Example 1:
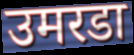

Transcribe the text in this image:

उमरडा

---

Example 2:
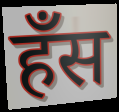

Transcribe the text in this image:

हँस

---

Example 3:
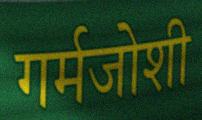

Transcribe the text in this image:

गर्मजोशी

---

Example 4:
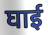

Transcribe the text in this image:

घाई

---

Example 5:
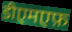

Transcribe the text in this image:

डीएमएफ़